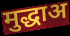
मुद्धाअ